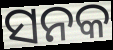
ସନକ